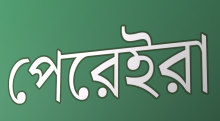
পেরেইরা